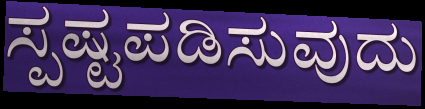
ಸ್ಪಷ್ಟಪಡಿಸುವುದು